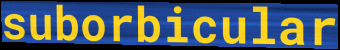
suborbicular